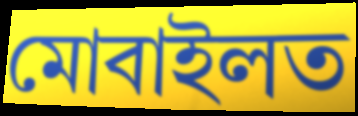
মোবাইলত